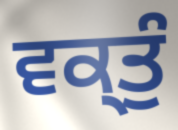
ਵਕ੍ਤੁੰ